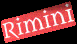
Rimini